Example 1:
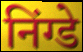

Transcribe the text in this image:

निंग्डे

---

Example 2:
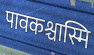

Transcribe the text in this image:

पावकश्चास्मि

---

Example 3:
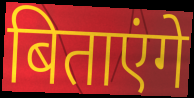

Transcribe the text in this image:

बिताएंगे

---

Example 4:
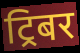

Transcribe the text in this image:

ट्रिबर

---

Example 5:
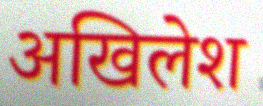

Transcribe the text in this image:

अखिलेश